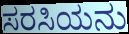
ಸರಸಿಯನು